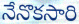
నేనొకసారి